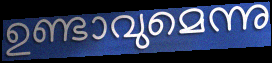
ഉണ്ടാവുമെന്നു